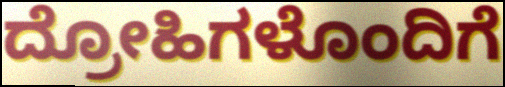
ದ್ರೋಹಿಗಳೊಂದಿಗೆ